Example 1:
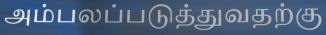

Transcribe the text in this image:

அம்பலப்படுத்துவதற்கு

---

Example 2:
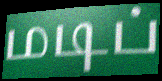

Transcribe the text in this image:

மடிப்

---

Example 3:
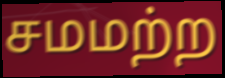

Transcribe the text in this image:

சமமற்ற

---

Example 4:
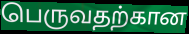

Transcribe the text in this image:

பெருவதற்கான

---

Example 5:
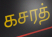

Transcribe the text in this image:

கசரத்